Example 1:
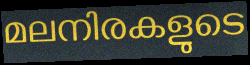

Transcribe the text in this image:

മലനിരകളുടെ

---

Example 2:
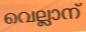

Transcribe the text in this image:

വെല്ലാന്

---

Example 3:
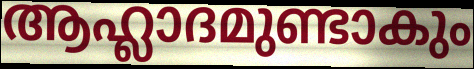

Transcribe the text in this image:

ആഹ്ലാദമുണ്ടാകും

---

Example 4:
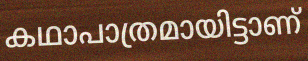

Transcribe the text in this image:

കഥാപാത്രമായിട്ടാണ്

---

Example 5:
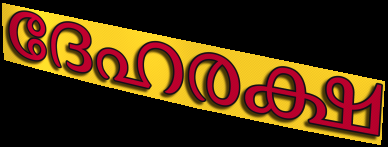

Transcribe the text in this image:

ദേഹരക്ഷ